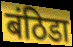
बंठिडा